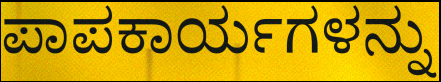
ಪಾಪಕಾರ್ಯಗಳನ್ನು